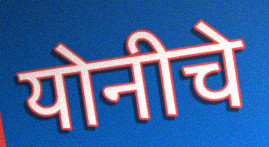
योनीचे